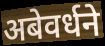
अबेवर्धने